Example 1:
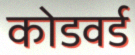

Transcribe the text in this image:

कोडवर्ड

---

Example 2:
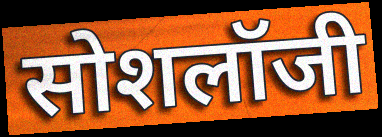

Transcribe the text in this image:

सोशलॉजी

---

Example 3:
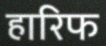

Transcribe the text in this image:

हारिफ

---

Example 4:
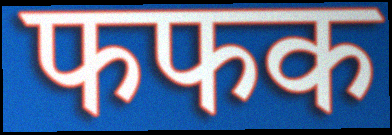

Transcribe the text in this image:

फफक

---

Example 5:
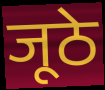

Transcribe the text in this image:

जूठे